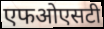
एफओएसटी